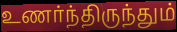
உணர்ந்திருந்தும்